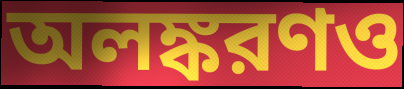
অলঙ্করণও